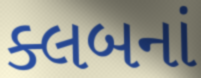
ક્લબનાં